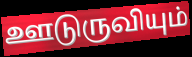
ஊடுருவியும்